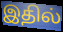
இதில்